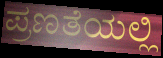
ಪ್ರಣತೆಯಲ್ಲಿ